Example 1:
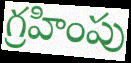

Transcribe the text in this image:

గ్రహింపు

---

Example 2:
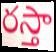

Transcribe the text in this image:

రస్తా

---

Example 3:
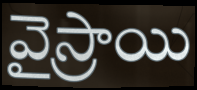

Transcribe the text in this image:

వైస్రాయి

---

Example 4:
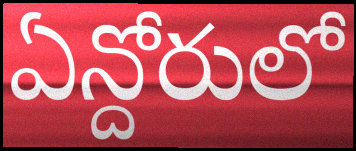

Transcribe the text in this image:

ఏన్దోరులో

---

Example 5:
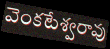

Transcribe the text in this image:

వెంకటేశ్వరావు